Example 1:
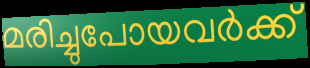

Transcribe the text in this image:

മരിച്ചുപോയവർക്ക്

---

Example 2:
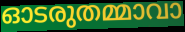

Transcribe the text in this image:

ഓടരുതമ്മാവാ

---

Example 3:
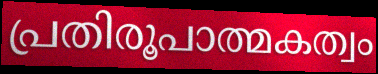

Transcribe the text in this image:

പ്രതിരൂപാത്മകത്വം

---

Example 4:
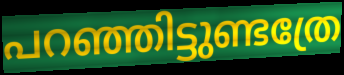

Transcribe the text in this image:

പറഞ്ഞിട്ടുണ്ടത്രേ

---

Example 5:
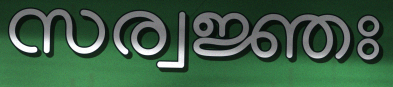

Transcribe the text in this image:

സര്വജ്ഞഃ